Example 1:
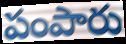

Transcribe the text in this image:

పంపారు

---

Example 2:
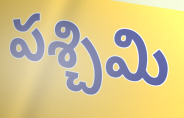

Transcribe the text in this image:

పశ్చిమి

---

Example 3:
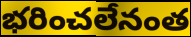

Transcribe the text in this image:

భరించలేనంత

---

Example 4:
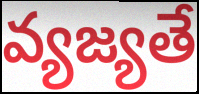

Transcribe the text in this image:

వ్యజ్యతే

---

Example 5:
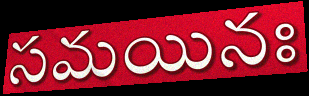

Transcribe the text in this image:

సమయినః